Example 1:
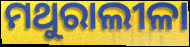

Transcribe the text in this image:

ମଥୁରାଲୀଳା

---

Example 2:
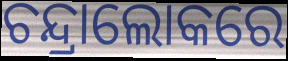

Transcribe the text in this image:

ଚନ୍ଦ୍ରାଲୋକରେ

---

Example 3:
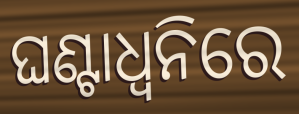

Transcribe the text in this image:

ଘଣ୍ଟାଧ୍ୱନିରେ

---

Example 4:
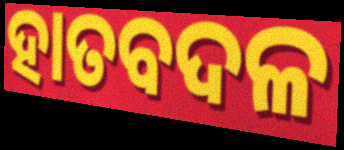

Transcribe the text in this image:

ହାତବଦଳ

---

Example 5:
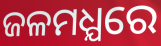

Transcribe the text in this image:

ଜଳମଧ୍ଯରେ